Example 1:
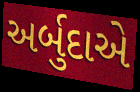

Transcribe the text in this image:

અર્બુદાએ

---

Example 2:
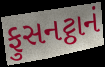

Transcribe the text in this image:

ફુસનટ્ઠાનં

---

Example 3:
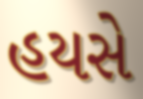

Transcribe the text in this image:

હયસે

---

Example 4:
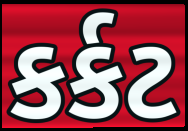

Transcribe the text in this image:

કર્કટ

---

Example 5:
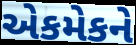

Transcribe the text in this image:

એકમેકને